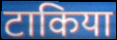
टाकिया